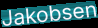
Jakobsen